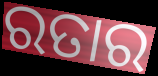
ରତାର